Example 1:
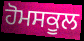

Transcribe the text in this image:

ਹੋਮਸਕੂਲ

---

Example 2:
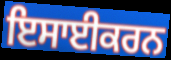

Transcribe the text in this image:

ਇਸਾਈਕਰਨ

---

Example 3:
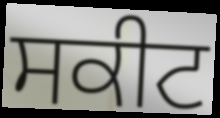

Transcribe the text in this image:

ਸਕੀਟ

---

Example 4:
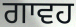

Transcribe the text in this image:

ਗਾਵਹ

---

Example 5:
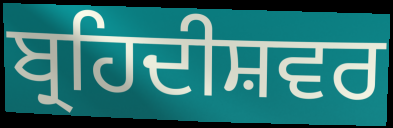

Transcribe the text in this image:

ਬ੍ਰਹਿਦੀਸ਼ਵਰ